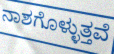
ನಾಶಗೊಳ್ಳುತ್ತವೆ